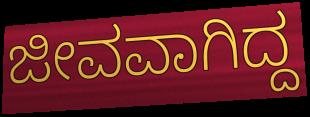
ಜೀವವಾಗಿದ್ದ